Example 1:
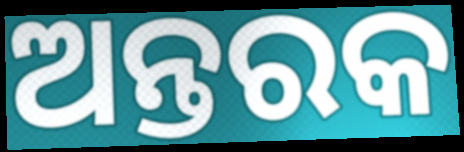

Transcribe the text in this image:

ଅନ୍ତରକ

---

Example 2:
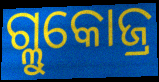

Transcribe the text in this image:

ଗ୍ଲୁକୋଜ୍ର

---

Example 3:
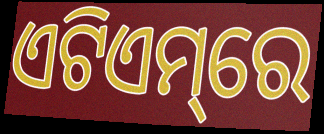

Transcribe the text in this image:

ଏଟିଏମ୍‌ରେ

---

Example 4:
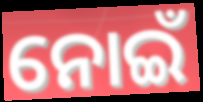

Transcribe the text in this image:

ନୋଇଁ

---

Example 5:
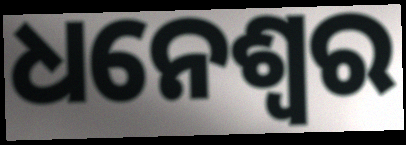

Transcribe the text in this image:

ଧନେଶ୍ବର